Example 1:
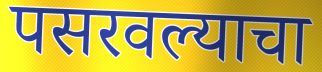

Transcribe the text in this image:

पसरवल्याचा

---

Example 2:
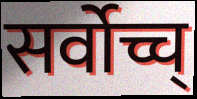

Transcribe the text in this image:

सर्वोच्च्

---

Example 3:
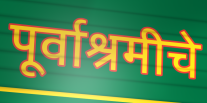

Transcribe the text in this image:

पूर्वाश्रमीचे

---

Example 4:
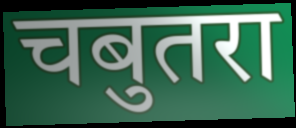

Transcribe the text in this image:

चबुतरा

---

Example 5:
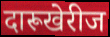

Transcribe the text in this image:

दारूखेरीज